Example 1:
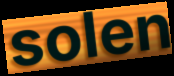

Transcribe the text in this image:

solen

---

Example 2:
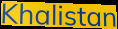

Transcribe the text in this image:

Khalistan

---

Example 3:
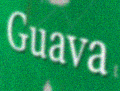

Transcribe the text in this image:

Guava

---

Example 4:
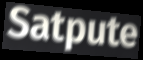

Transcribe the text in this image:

Satpute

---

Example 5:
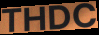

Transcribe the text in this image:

THDC